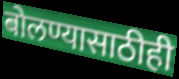
बोलण्यासाठीही